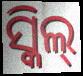
ସ୍କିଲ୍